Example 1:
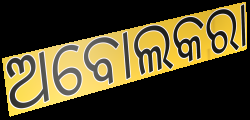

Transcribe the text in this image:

ଅବୋଲକରା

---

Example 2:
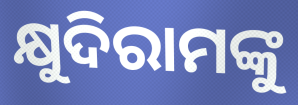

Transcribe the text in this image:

କ୍ଷୁଦିରାମଙ୍କୁ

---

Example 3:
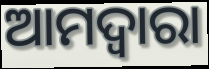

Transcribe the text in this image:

ଆମଦ୍ୱାରା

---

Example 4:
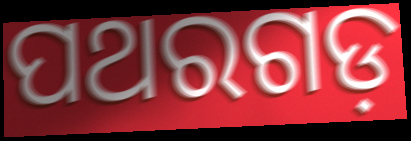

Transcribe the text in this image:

ପଥରଗଡ଼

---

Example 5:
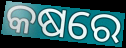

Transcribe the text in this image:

କଷରେ